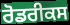
ਰੋਡਰੀਕਸ